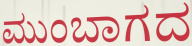
ಮುಂಬಾಗದ